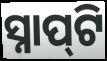
ସ୍ନାପ୍‍ଟି